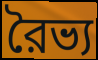
রৈভ্য